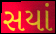
સયાં